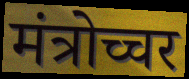
मंत्रोच्चर